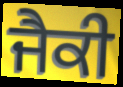
ਜੈਕੀ